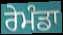
ਰੇਮੰਡਾ